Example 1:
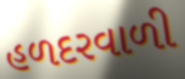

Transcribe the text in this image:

હળદરવાળી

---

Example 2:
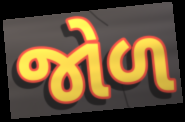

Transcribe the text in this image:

જોળ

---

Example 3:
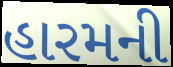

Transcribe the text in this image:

હારમની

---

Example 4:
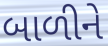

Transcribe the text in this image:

બાળીને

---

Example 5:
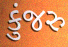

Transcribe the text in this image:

કુંજરુ